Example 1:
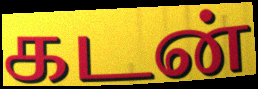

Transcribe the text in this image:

கடன்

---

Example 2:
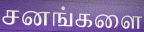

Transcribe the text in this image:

சனங்களை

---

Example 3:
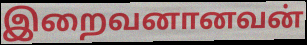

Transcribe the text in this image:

இறைவனானவன்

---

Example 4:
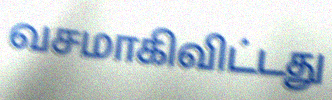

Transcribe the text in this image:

வசமாகிவிட்டது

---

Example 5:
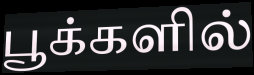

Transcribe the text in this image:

பூக்களில்